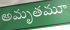
అమృతమూ